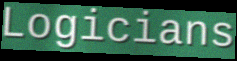
Logicians